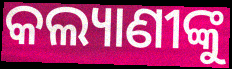
କଲ୍ୟାଣୀଙ୍କୁ